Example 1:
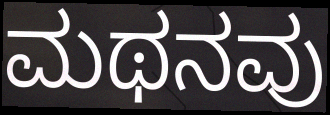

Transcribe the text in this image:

ಮಥನವು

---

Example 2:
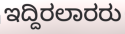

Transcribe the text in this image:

ಇದ್ದಿರಲಾರರು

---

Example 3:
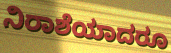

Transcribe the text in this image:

ನಿರಾಶೆಯಾದರೂ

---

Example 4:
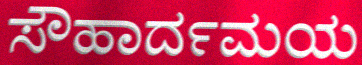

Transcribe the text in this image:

ಸೌಹಾರ್ದಮಯ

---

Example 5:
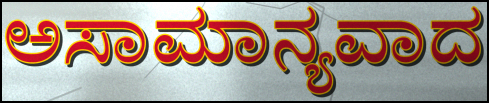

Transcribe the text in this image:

ಅಸಾಮಾನ್ಯವಾದ